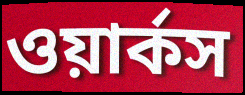
ওয়ার্কস